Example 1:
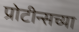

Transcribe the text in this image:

प्रोटीन्सच्या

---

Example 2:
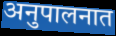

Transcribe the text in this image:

अनुपालनात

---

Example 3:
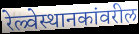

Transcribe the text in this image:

रेल्वेस्थानकांवरील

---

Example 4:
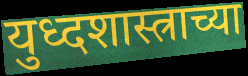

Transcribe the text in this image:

युध्दशास्त्राच्या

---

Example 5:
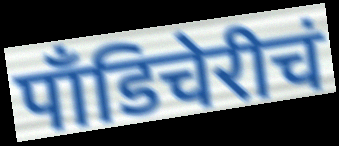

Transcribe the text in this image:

पाँडिचेरीचं